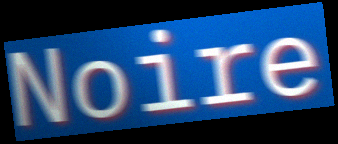
Noire